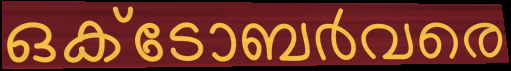
ഒക്ടോബർവരെ